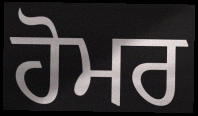
ਹੋਮਰ